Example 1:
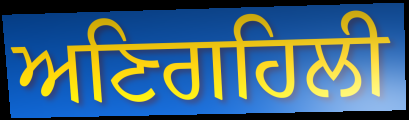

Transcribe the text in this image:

ਅਣਿਗਹਿਲੀ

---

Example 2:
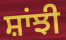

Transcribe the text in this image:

ਸ਼ਾਂਝੀ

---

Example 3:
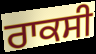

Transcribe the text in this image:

ਰਾਕਸੀ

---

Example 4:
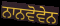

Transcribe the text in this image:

ਨਾਨਵੋਵੇਨ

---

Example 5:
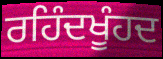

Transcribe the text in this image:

ਰਹਿੰਦਖੂੰਹਦ